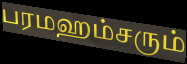
பரமஹம்சரும்